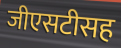
जीएसटीसह